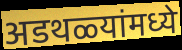
अडथळ्यांमध्ये